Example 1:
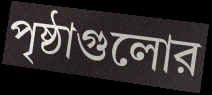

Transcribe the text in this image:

পৃষ্ঠাগুলোর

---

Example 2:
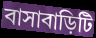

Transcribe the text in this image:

বাসাবাড়িটি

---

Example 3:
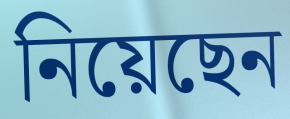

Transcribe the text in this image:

নিয়েছেন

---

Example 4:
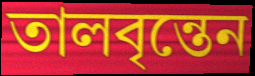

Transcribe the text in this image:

তালবৃন্তেন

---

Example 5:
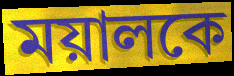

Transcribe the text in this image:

ময়ালকে